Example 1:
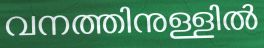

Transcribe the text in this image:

വനത്തിനുള്ളിൽ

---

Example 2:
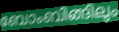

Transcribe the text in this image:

ബോംബിങ്ങിലും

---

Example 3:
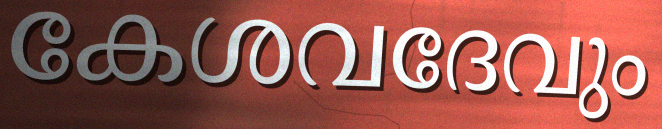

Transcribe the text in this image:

കേശവദേവും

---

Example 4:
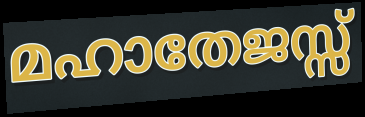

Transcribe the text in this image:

മഹാതേജസ്സ്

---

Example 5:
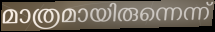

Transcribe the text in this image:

മാത്രമായിരുന്നെന്ന്